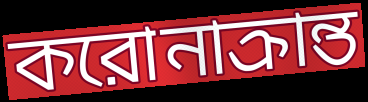
করোনাক্রান্ত